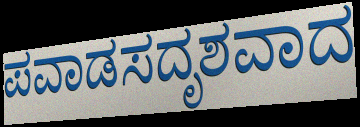
ಪವಾಡಸದೃಶವಾದ